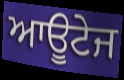
ਆਊਟੇਜ